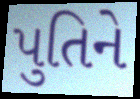
પુતિને